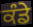
ਕੰਡੇ